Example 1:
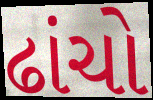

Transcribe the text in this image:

ઢાંચો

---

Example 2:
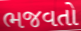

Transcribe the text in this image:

ભજવતો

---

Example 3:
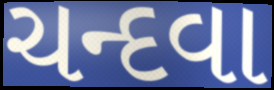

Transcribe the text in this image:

ચન્દવા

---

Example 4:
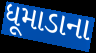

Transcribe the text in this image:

ધૂમાડાના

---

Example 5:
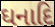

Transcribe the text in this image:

ઘનાદિ